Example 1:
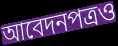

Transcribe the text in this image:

আবেদনপত্রও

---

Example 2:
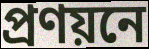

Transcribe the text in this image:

প্রণয়নে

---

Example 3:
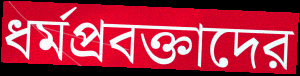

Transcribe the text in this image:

ধর্মপ্রবক্তাদের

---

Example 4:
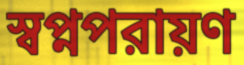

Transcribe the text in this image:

স্বপ্নপরায়ণ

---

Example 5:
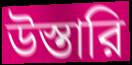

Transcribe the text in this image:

উস্তারি